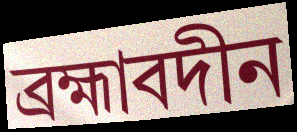
ব্ৰহ্মাবদীন